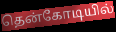
தென்கோடியில்